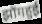
झोंगहुई